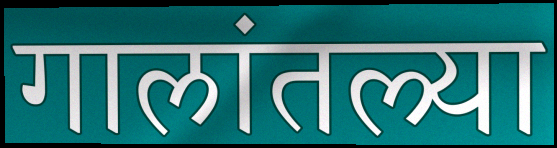
गालांतल्या